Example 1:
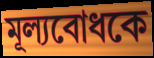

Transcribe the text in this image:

মূল্যবোধকে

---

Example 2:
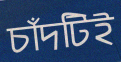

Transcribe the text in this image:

চাঁদটিই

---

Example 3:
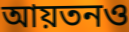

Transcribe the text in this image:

আয়তনও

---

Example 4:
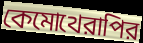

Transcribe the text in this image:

কেমোথেরাপির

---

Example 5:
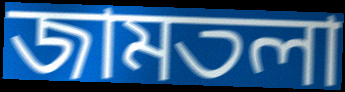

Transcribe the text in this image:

জামতলা